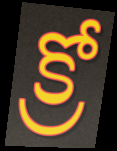
క్రో